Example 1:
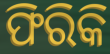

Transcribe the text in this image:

ଫିରିକି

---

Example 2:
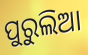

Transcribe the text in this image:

ପୁରୁଲିଆ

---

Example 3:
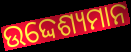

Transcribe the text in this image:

ଉଦ୍ଦେଶ୍ୟମାନ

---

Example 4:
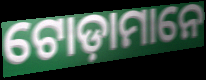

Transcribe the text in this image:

ଟୋଡ଼ାମାନେ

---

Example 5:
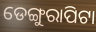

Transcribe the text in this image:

ଡେଙ୍ଗୁରାପିଟା